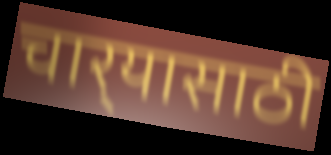
चार्‍यासाठी